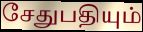
சேதுபதியும்